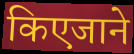
किएजाने